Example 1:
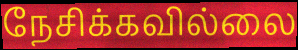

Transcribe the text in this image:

நேசிக்கவில்லை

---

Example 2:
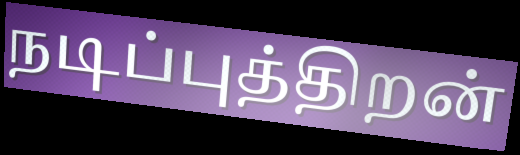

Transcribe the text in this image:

நடிப்புத்திறன்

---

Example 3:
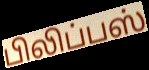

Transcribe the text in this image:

பிலிப்பஸ்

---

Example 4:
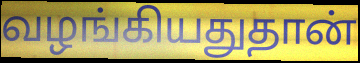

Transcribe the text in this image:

வழங்கியதுதான்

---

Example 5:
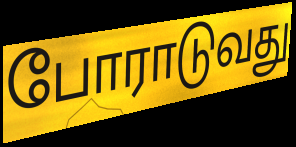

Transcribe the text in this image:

போராடுவது